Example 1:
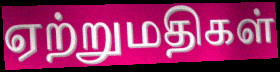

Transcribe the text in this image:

ஏற்றுமதிகள்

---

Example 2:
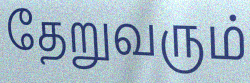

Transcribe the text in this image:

தேறுவரும்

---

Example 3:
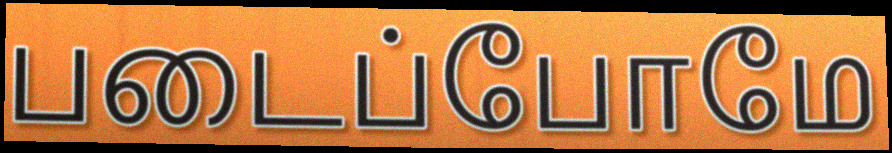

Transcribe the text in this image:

படைப்போமே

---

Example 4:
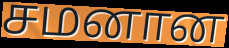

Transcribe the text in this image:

சமனான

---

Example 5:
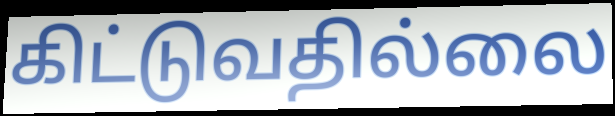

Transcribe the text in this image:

கிட்டுவதில்லை